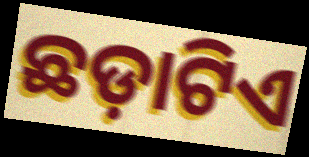
ଛଡ଼ାଟିଏ